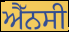
ਐੱਨਸੀ